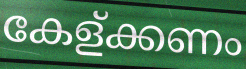
കേള്ക്കണം